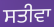
ਸਤੀਵਾ